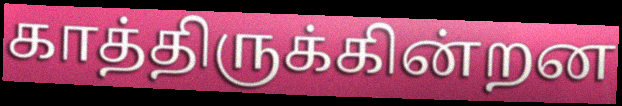
காத்திருக்கின்றன